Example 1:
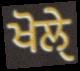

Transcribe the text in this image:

ਖੋਲੑੇ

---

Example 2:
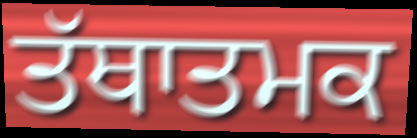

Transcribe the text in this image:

ਤੱਥਾਤਮਕ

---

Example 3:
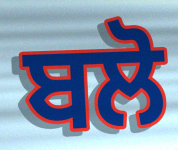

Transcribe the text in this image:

ਬਲੋ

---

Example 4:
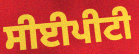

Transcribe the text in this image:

ਸੀਈਪੀਟੀ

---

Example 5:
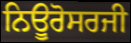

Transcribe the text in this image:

ਨਿਊਰੋਸਰਜੀ